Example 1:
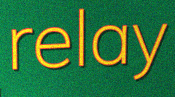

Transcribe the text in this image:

relay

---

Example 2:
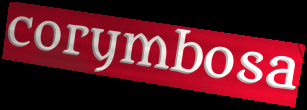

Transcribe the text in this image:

corymbosa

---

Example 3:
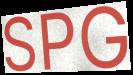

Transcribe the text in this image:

SPG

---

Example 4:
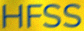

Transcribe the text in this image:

HFSS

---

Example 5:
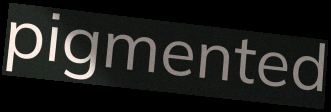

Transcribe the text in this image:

pigmented